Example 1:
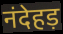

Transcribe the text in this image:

नंदेहड़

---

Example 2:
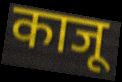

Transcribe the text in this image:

काजू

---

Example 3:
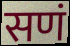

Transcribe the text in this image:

सणं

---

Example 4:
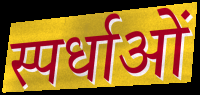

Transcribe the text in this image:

स्पर्धाओं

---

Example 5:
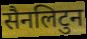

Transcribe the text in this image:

सैनलिटुन